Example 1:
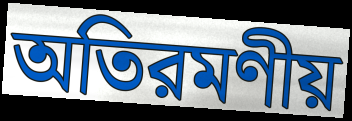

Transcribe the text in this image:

অতিরমণীয়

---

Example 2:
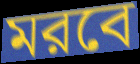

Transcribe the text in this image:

মরবে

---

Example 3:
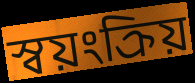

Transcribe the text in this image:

স্বয়ংক্রিয়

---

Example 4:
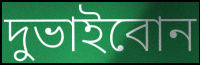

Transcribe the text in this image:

দুভাইবোন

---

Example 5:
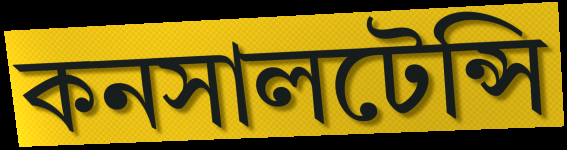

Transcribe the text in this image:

কনসালটেন্সি